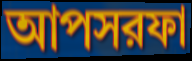
আপসরফা